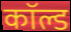
कॉल्ड